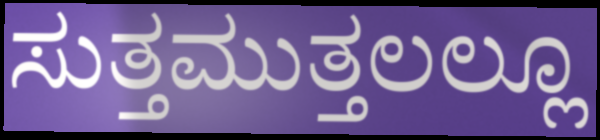
ಸುತ್ತಮುತ್ತಲಲ್ಲೂ